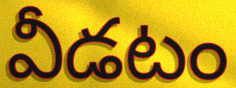
వీడటం